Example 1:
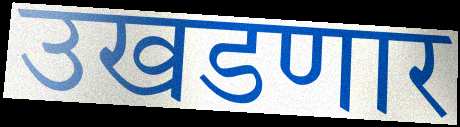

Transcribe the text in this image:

उखडणार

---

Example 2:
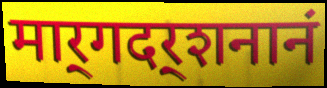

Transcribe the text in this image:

मार्गदर्शनानं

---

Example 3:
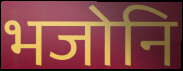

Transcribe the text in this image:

भजोनि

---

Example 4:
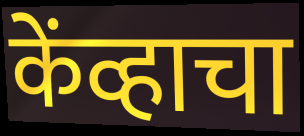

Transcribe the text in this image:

केंव्हाचा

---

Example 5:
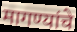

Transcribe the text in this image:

मागण्यांचे